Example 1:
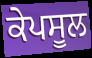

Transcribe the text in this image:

ਕੇਪਸੂਲ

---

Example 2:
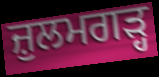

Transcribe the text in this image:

ਜ਼ੁਲਮਗੜ੍ਹ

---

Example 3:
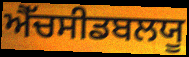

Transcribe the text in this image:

ਐੱਚਸੀਡਬਲਯੂ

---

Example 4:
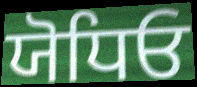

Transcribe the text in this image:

ਯੋਧਿਓ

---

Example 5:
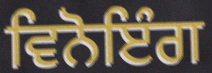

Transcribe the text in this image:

ਵਿਨੋਇੰਗ